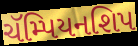
ચૅમ્પિયનશિપ